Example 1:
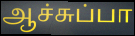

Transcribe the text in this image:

ஆச்சுப்பா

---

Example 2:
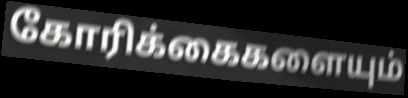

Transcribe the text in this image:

கோரிக்கைகளையும்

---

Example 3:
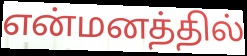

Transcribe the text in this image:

என்மனத்தில்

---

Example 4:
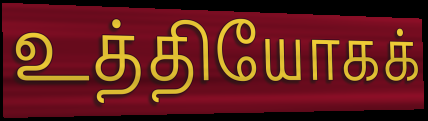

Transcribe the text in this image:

உத்தியோகக்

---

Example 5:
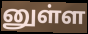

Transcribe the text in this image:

னுள்ள